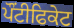
ਪੌਂਟੀਫਿਕੇਟ